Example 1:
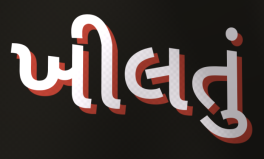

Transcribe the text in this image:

ખીલતું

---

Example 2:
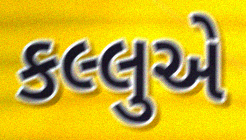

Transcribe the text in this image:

કલ્લુએ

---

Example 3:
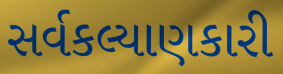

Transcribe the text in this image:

સર્વકલ્યાણકારી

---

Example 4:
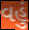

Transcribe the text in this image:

વહું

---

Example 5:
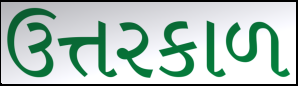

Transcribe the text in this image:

ઉત્તરકાળ